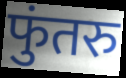
फुंतरु